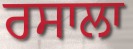
ਰਸਾਲਾ